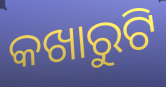
କଖାରୁଟି